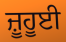
ਜ਼ੂਹੂਈ